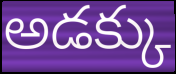
అడక్కు